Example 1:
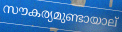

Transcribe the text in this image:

സൗകര്യമുണ്ടായാല്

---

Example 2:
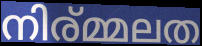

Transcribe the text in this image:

നിര്മ്മലത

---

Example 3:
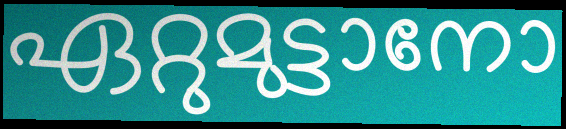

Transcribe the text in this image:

ഏറ്റുമുട്ടാനോ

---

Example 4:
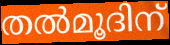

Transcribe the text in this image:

തൽമൂദിന്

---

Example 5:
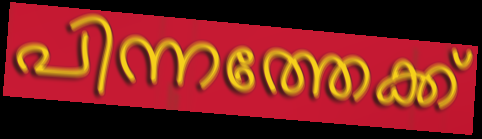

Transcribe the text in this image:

പിന്നത്തേക്ക്